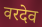
वरदेव